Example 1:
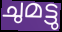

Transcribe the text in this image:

ചുമട്ടു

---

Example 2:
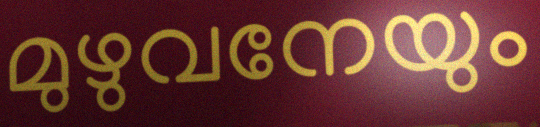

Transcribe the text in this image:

മുഴുവനേയും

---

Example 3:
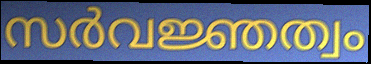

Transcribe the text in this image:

സർവജ്ഞത്വം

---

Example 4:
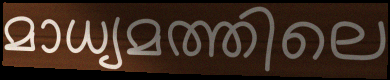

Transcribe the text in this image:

മാധ്യമത്തിലെ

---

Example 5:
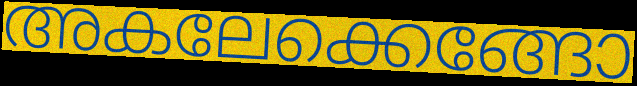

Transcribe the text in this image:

അകലേക്കെങ്ങോ